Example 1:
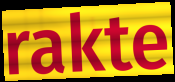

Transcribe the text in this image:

rakte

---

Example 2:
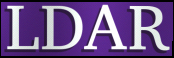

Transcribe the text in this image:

LDAR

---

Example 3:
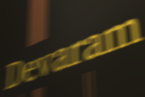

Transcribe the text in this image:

Devaram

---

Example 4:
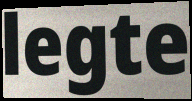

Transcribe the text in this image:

legte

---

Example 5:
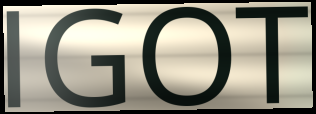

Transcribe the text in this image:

IGOT